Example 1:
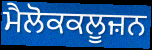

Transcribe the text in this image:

ਮੈਲੋਕਕਲੂਜ਼ਨ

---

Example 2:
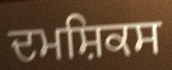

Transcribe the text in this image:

ਦਮਸ਼ਿਕਸ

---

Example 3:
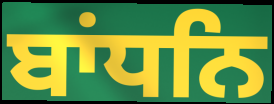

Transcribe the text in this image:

ਬਾਂਧਨਿ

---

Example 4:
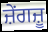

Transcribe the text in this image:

ਜ਼ੇਂਗਜ਼ੂ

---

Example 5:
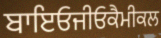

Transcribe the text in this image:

ਬਾਇਓਜੀਓਕੈਮੀਕਲ